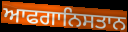
ਆਫਗਾਨਿਸਤਾਨ